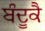
ਬੰਦੂਕੈ